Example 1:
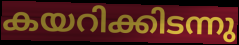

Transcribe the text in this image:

കയറിക്കിടന്നു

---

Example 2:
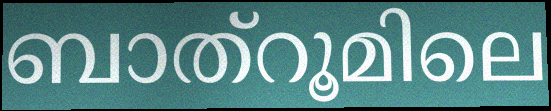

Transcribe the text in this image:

ബാത്റൂമിലെ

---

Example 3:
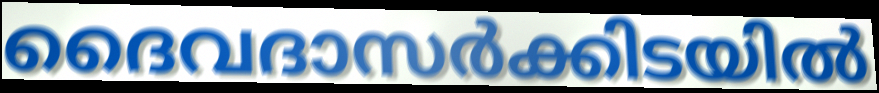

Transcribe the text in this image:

ദൈവദാസർക്കിടയിൽ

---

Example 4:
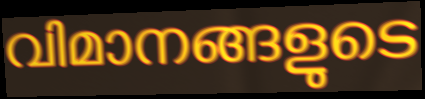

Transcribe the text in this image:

വിമാനങ്ങളുടെ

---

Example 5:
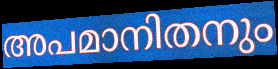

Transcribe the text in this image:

അപമാനിതനും